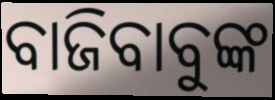
ବାଜିବାବୁଙ୍କ